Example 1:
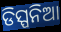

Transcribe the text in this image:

ଡିସ୍ପନିଆ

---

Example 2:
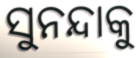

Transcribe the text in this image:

ସୁନନ୍ଦାକୁ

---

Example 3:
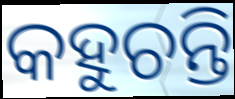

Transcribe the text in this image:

କହୁଚନ୍ତି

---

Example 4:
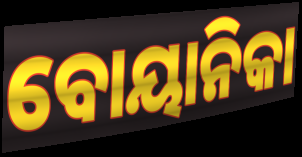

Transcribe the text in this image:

ବୋୟାନିକା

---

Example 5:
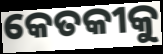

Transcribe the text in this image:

କେତକୀକୁ